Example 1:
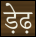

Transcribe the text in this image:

ड़ेढ़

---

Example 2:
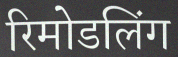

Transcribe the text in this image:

रिमोडलिंग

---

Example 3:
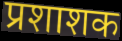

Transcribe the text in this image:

प्रशाशक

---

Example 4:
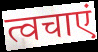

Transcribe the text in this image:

त्वचाएं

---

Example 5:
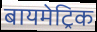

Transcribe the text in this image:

बायमेट्रिक